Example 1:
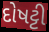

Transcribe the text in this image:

દોષટ્ટી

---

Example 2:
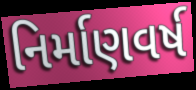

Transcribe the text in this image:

નિર્માણવર્ષ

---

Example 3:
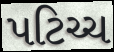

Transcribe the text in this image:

પટિચ્ચ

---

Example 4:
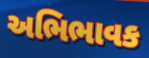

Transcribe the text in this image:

અભિભાવક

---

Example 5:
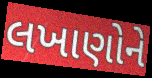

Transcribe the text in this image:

લખાણોને